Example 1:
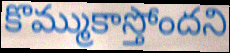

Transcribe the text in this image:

కొమ్ముకాస్తోందని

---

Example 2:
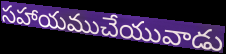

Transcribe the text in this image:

సహాయముచేయువాడు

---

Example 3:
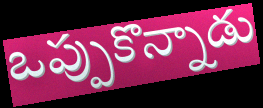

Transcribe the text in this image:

ఒప్పుకొన్నాడు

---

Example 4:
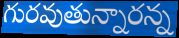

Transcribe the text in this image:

గురవుతున్నారన్న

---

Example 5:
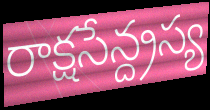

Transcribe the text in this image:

రాక్షసేన్ద్రస్య